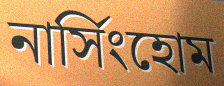
নার্সিংহোম